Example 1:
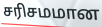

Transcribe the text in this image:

சரிசமமான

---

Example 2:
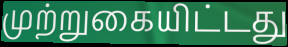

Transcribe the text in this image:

முற்றுகையிட்டது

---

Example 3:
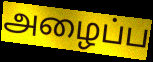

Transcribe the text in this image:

அழைப்ப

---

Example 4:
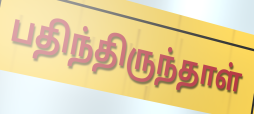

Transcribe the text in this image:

பதிந்திருந்தாள்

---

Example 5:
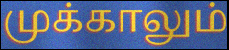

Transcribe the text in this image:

முக்காலும்